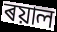
ৰয়াল